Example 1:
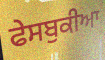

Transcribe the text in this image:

ਫੇਸਬੁਕੀਆ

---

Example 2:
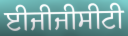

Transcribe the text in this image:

ਈਜੀਜੀਸੀਟੀ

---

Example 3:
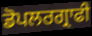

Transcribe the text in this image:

ਡੋਪਲਰਗ੍ਰਾਫੀ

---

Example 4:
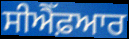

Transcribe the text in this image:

ਸੀਐੱਫ਼ਆਰ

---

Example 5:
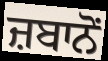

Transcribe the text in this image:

ਜ਼ਬਾਨੋਂ